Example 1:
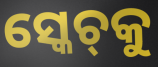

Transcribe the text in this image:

ସ୍କେଚ୍‌କୁ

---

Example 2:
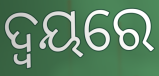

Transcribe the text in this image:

ଦ୍ୱୟରେ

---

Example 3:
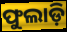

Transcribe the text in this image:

ଫୁଲାଡ଼ି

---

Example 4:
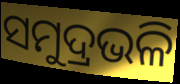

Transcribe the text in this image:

ସମୁଦ୍ରଭଳି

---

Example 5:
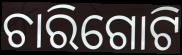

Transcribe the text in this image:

ଚାରିଗୋଟି